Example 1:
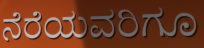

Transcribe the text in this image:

ನೆರೆಯವರಿಗೂ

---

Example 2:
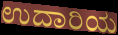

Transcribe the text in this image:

ಉದಾರಿಯ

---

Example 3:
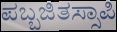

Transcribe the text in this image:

ಪಬ್ಬಜಿತಸ್ಸಾಪಿ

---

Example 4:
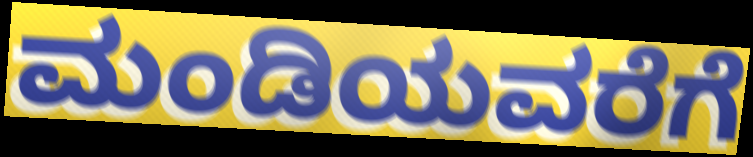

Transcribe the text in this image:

ಮಂಡಿಯವರೆಗೆ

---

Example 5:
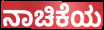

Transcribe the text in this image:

ನಾಚಿಕೆಯ